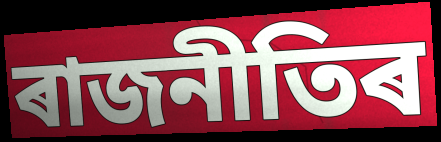
ৰাজনীতিৰ